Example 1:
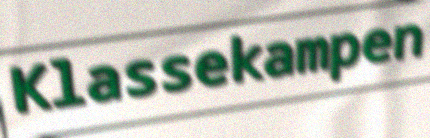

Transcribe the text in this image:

Klassekampen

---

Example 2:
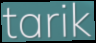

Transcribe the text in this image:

tarik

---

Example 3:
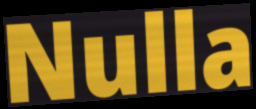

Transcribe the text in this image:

Nulla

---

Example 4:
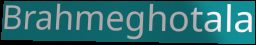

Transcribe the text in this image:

Brahmeghotala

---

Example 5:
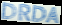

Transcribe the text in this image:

DRDA